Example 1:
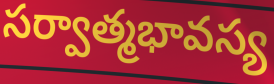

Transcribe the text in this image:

సర్వాత్మభావస్య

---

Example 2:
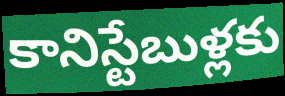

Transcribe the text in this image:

కానిస్టేబుళ్లకు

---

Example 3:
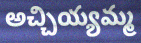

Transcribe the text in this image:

అచ్చియ్యమ్మ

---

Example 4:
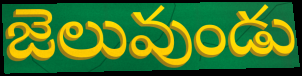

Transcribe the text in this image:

జెలువుండు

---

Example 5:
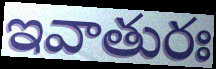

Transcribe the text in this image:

ఇవాతురః